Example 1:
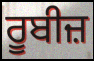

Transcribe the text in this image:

ਰੂਬੀਜ਼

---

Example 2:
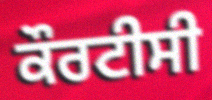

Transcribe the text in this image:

ਕੌਰਟੀਸੀ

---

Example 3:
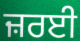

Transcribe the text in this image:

ਜ਼ਰਈ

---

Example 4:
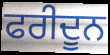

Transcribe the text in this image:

ਫਰੀਦੂਨ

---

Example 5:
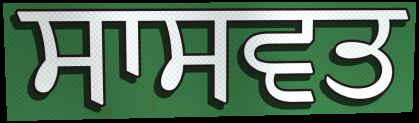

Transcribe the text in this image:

ਸਾਸਵਤ